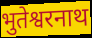
भुतेश्वरनाथ